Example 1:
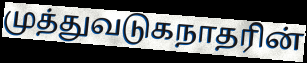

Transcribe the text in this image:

முத்துவடுகநாதரின்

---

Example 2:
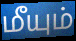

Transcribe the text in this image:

மீயும்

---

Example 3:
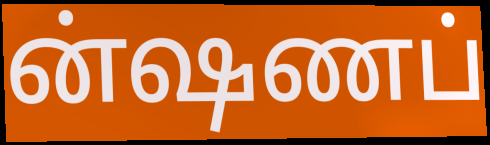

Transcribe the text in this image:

ன்ஷணப்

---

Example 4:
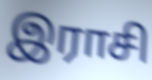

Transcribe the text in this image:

இராசி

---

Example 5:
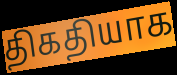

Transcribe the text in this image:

திகதியாக